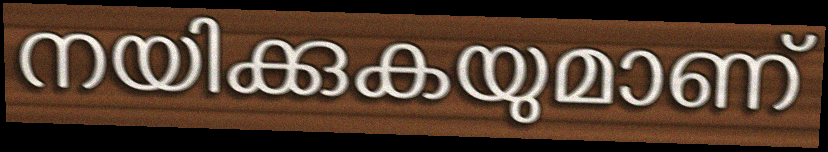
നയിക്കുകയുമാണ്